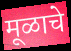
मूळाचे